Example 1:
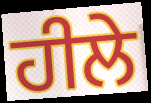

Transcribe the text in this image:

ਹੀਲੇ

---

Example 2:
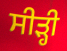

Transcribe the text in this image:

ਸੀੜ੍ਹੀ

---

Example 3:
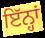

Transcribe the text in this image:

ਇੱਨ੍ਹਾਂ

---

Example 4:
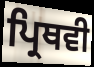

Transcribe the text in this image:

ਪ੍ਰਿਥਵੀ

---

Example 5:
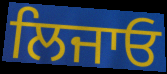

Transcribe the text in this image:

ਲਿਜਾਓ